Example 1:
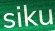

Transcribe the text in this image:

siku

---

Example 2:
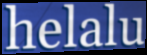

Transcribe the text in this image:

helalu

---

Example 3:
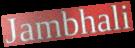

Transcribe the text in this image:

Jambhali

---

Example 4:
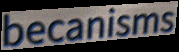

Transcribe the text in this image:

becanisms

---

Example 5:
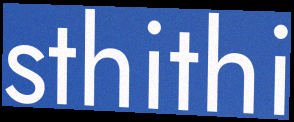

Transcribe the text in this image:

sthithi